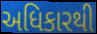
અધિકારથી